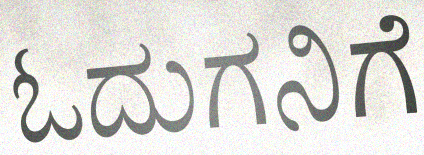
ಓದುಗನಿಗೆ